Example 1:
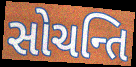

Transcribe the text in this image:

સોચન્તિ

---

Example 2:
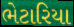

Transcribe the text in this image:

ભેટારિયા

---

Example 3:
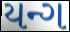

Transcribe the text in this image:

યન્ગ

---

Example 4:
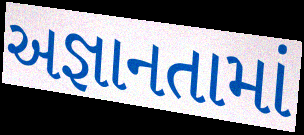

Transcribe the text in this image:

અજ્ઞાનતામાં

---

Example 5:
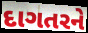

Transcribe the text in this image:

દાગતરને